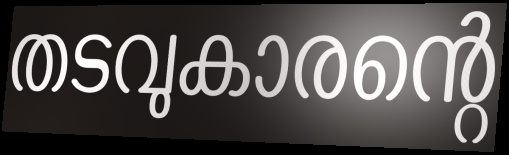
തടവുകാരന്റെ